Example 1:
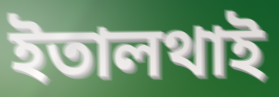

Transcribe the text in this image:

ইতালথাই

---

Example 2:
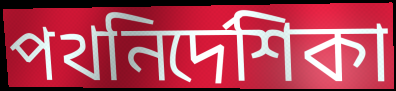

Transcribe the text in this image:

পথনির্দেশিকা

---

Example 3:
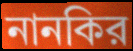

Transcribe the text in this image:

নানকির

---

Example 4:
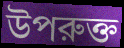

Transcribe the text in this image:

উপরুক্ত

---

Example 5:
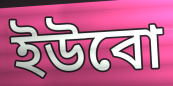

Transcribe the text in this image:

ইউবো